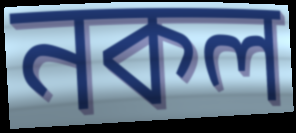
নকল